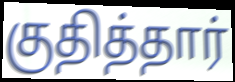
குதித்தார்